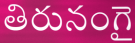
తిరునంగై